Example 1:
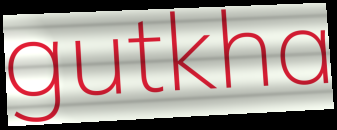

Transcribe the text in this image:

gutkha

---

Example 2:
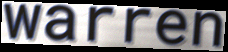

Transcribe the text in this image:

warren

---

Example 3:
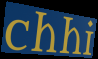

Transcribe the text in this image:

chhi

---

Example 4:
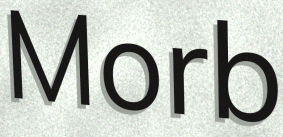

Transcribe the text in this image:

Morb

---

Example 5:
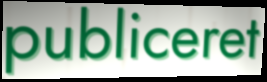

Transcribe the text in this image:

publiceret